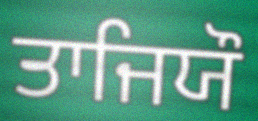
ਤਾਜਿਯੌ